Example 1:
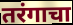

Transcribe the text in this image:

तरंगाचा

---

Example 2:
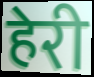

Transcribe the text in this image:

हेरी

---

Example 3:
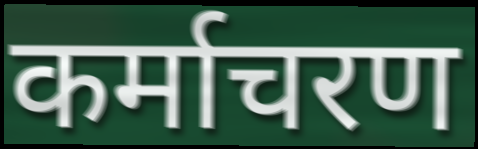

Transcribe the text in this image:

कर्माचरण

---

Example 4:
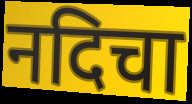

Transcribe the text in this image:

नदिचा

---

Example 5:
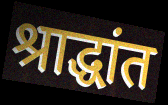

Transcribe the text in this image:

श्राद्धांत